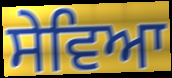
ਸੇਵਿਆ